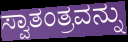
ಸ್ವಾತಂತ್ರವನ್ನು